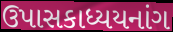
ઉપાસકાધ્યયનાંગ